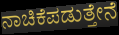
ನಾಚಿಕೆಪಡುತ್ತೇನೆ